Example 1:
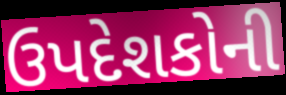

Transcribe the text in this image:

ઉપદેશકોની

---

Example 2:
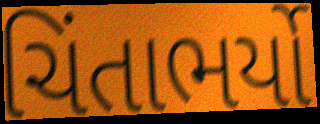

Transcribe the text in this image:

ચિંતાભર્યો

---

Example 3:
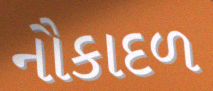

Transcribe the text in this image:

નૌકાદળ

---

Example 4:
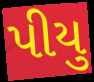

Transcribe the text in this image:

પીયુ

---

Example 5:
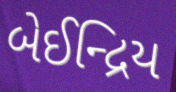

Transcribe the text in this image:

બેઈન્દ્રિય